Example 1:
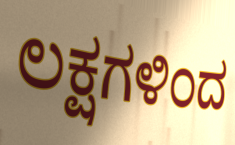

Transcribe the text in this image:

ಲಕ್ಷಗಳಿಂದ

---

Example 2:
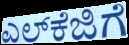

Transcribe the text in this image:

ಎಲ್‌ಕೆಜಿಗೆ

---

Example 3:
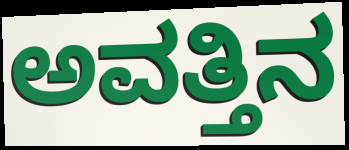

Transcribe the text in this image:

ಅವತ್ತಿನ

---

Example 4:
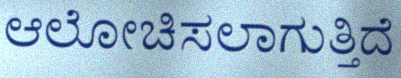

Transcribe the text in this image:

ಆಲೋಚಿಸಲಾಗುತ್ತಿದೆ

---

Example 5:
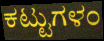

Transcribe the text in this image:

ಕಟ್ಟುಗಳಂ